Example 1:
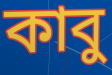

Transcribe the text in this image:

কাবু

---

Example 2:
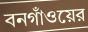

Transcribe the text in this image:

বনগাঁওয়ের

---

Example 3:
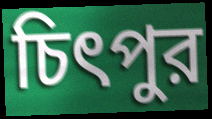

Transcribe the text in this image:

চিৎপুর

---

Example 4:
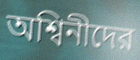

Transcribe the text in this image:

অশ্বিনীদের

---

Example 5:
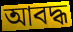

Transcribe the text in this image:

আবদ্ধ